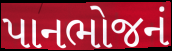
પાનભોજનં